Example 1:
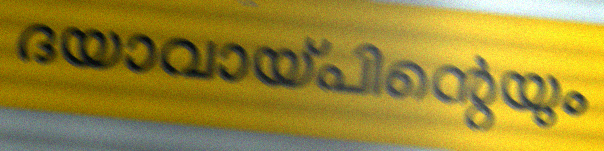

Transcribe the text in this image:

ദയാവായ്പിന്റെയും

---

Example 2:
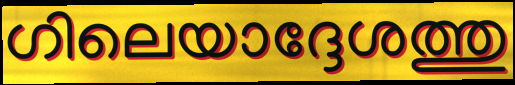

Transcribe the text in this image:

ഗിലെയാദ്ദേശത്തു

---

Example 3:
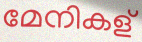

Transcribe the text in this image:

മേനികള്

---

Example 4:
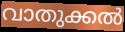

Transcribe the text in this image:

വാതുക്കൽ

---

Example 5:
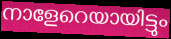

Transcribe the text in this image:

നാളേറെയായിട്ടും